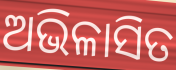
ଅଭିଳାସିତ